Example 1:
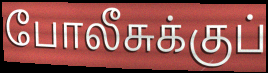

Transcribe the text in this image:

போலீசுக்குப்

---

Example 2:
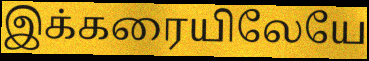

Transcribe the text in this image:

இக்கரையிலேயே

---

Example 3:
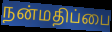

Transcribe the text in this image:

நன்மதிப்பை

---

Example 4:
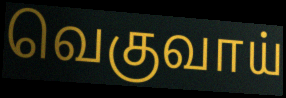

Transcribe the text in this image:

வெகுவாய்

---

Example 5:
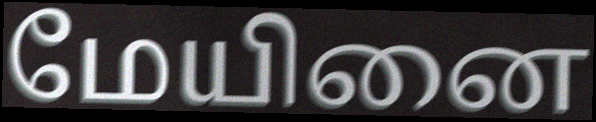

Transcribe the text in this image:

மேயினை